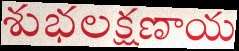
శుభలక్షణాయ